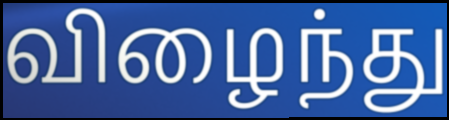
விழைந்து